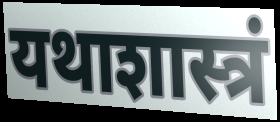
यथाशास्त्रं